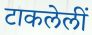
टाकलेलीं